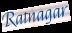
Ratnagar